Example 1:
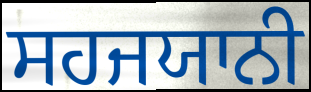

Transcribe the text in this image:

ਸਹਜਯਾਨੀ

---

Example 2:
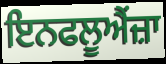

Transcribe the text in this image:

ਇਨਫਲੂਐਂਜ਼ਾ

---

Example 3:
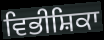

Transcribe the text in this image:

ਵਿਭੀਸ਼ਿਕਾ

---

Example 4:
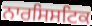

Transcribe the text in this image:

ਨਾਰਸਿਸਟਿਕ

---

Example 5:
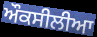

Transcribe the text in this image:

ਔਕਸੀਲੀਆ